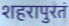
शहरापुरतं